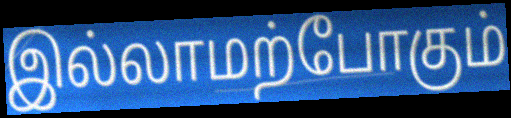
இல்லாமற்போகும்